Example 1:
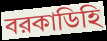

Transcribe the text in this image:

বরকাডিহি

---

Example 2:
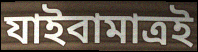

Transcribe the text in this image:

যাইবামাত্রই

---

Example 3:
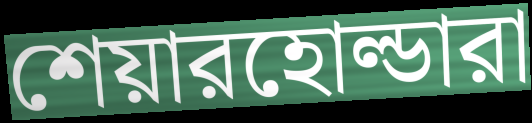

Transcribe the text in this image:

শেয়ারহোল্ডারা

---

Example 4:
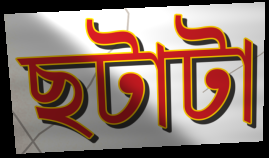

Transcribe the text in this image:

ছটাটা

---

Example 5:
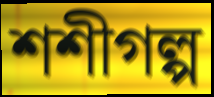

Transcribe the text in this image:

শশীগল্প